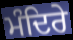
ਮੰਦਿਰੇ